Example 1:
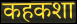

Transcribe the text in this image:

कहकशा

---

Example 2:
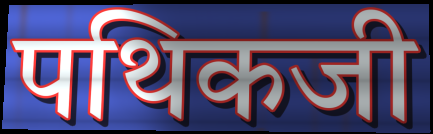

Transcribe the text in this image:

पथिकजी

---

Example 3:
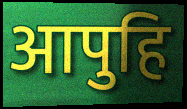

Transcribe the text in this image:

आपुहि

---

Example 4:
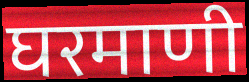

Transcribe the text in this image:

घरमाणी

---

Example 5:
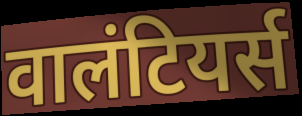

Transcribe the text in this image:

वालंटियर्स